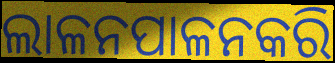
ଲାଳନପାଳନକରି